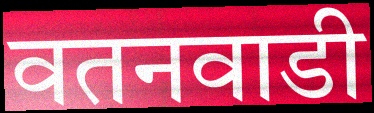
वतनवाडी